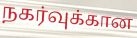
நகர்வுக்கான